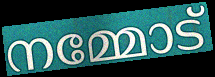
നമ്മോട്